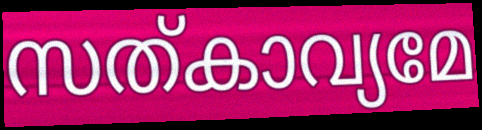
സത്കാവ്യമേ